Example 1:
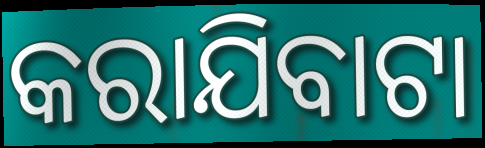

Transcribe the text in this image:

କରାଯିବାଟା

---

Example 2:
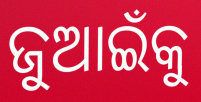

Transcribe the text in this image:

ଜୁଆଇଁକୁ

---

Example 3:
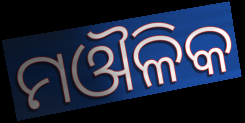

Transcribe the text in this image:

ମଔଳିକ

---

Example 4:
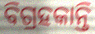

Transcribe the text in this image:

ବିଗ୍ରହକାନ୍ତି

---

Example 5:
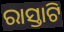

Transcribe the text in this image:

ରାସ୍ତାଟି